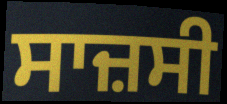
ਸਾਜ਼ਸੀ